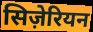
सिज़ेरियन